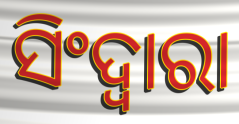
ସିଂଦ୍ୱାରା